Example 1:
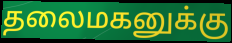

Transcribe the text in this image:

தலைமகனுக்கு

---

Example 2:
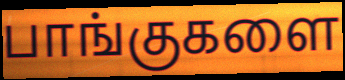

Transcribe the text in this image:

பாங்குகளை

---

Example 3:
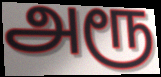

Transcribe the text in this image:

அரூ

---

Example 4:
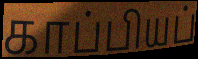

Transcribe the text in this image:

காப்பியப்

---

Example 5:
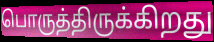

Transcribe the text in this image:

பொருத்திருக்கிறது